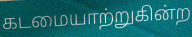
கடமையாற்றுகின்ற